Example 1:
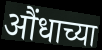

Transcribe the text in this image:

औंधाच्या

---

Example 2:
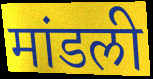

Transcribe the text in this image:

मांडली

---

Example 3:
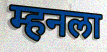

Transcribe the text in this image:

म्हनला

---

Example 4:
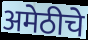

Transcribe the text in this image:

अमेठीचे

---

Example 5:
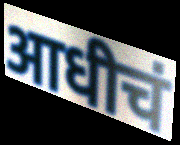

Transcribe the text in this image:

आधीचं